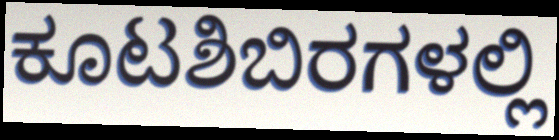
ಕೂಟಶಿಬಿರಗಳಲ್ಲಿ